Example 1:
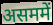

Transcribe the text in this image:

असममें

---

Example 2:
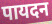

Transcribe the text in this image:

पायदन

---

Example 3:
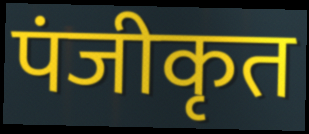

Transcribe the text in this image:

पंजीकृत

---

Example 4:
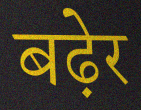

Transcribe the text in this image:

बढ़ेर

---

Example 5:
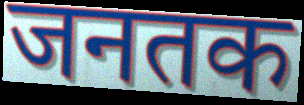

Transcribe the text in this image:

जनतक